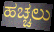
ಹಚ್ಚಲು